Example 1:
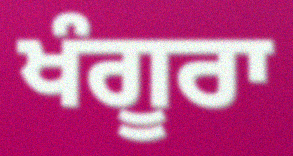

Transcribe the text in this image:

ਖੰਗੂਰਾ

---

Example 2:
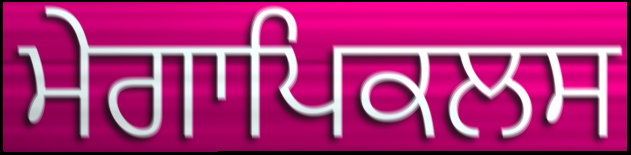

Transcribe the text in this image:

ਮੇਗਾਪਿਕਲਸ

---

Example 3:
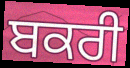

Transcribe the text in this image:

ਬਕਰੀ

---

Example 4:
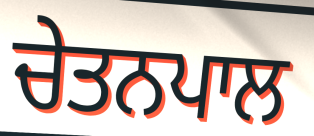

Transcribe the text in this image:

ਚੇਤਨਪਾਲ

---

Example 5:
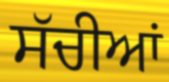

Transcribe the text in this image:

ਸੱਚੀਆਂ